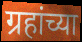
ग्रहांच्या